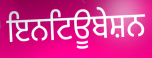
ਇਨਟਿਊਬੇਸ਼ਨ